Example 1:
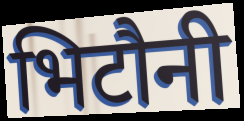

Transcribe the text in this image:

भिटौनी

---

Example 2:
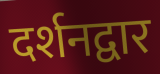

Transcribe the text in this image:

दर्शनद्वार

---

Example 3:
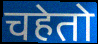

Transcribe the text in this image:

चहेतो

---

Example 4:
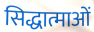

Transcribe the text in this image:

सिद्धात्माओं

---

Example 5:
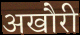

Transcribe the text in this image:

अखौरी